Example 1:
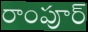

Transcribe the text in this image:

రాంపూర్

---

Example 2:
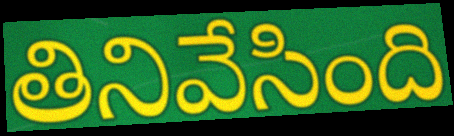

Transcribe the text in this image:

తినివేసింది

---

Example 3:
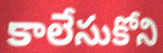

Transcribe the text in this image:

కాలేసుకోని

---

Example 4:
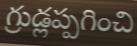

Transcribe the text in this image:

గ్రుడ్లప్పగించి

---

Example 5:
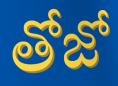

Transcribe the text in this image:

తోజో